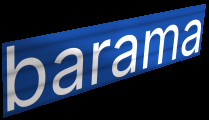
barama